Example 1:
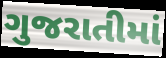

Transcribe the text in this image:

ગુજરાતીમાં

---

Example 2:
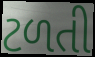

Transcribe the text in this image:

ટળતી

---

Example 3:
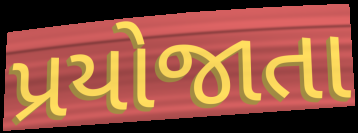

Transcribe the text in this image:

પ્રયોજાતા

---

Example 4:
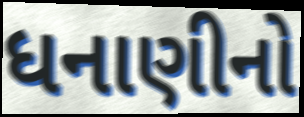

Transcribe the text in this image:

ધનાણીનો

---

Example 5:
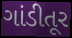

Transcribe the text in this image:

ગાંડીતૂર